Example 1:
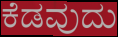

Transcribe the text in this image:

ಕೆಡವುದು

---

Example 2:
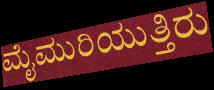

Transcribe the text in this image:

ಮೈಮುರಿಯುತ್ತಿರು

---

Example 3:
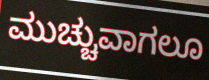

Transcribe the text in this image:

ಮುಚ್ಚುವಾಗಲೂ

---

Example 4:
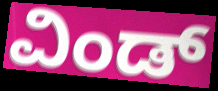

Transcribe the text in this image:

ವಿಂಡ್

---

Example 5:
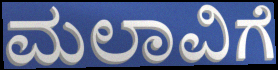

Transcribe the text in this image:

ಮಲಾವಿಗೆ